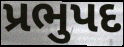
પ્રભુપદ